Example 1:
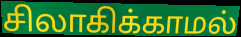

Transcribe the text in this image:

சிலாகிக்காமல்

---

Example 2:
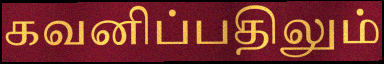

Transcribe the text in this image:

கவனிப்பதிலும்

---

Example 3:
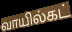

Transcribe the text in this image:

வாயில்கட்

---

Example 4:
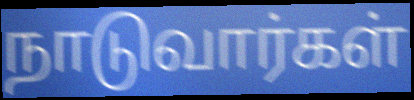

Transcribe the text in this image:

நாடுவார்கள்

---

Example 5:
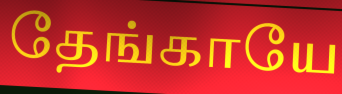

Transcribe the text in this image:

தேங்காயே